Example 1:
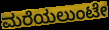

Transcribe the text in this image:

ಮರೆಯಲುಂಟೇ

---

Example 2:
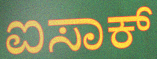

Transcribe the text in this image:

ಐಸಾಕ್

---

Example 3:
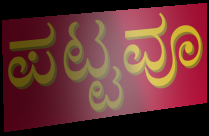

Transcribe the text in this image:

ಪಟ್ಟವೂ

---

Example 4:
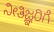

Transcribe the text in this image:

ನೀತಿಜ್ಞರಿಗೆ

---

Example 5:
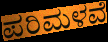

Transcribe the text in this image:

ಪರಿಮಳವೆ